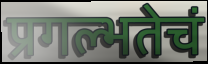
प्रगल्भतेचं